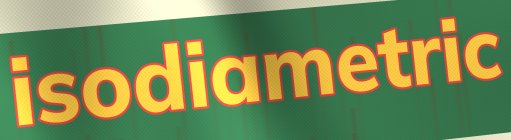
isodiametric